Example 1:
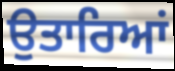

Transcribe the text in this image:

ਉਤਾਰਿਆਂ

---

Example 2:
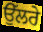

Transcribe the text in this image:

ਉੱਲਰੇ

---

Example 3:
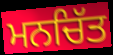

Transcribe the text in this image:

ਮਨਚਿੱਤ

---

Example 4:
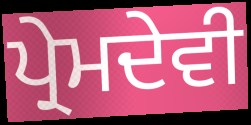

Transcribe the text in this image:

ਪ੍ਰੇਮਦੇਵੀ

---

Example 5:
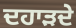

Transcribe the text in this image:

ਦਹਾੜਦੇ